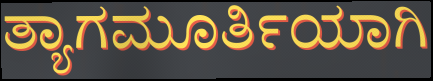
ತ್ಯಾಗಮೂರ್ತಿಯಾಗಿ